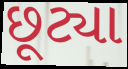
છૂટ્યા